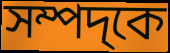
সম্পদ্‌কে